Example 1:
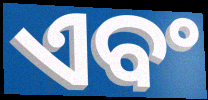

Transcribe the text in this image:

ଏବଂ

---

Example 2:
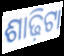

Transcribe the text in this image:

ଶାଢ଼ିଟା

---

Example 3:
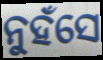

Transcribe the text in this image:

ନୁହଁସେ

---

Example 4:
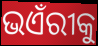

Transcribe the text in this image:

ଭଏଁରୀକୁ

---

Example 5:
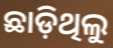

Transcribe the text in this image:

ଛାଡ଼ିଥିଲୁ